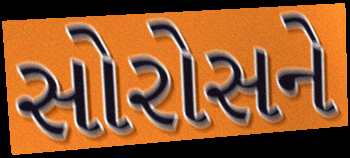
સોરોસને